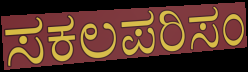
ಸಕಲಪರಿಸಂ